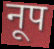
नूप